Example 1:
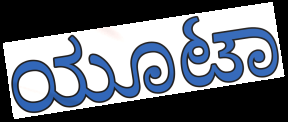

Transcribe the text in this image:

ಯೂಟಾ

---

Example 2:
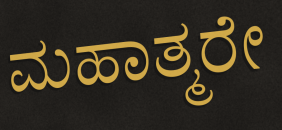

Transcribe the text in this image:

ಮಹಾತ್ಮರೇ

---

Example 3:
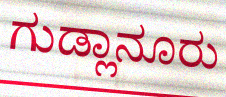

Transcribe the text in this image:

ಗುಡ್ಲಾನೂರು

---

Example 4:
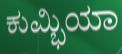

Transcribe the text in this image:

ಕುಮ್ಭಿಯಾ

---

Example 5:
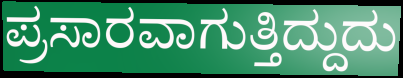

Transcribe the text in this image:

ಪ್ರಸಾರವಾಗುತ್ತಿದ್ದುದು